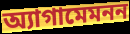
অ্যাগামেমনন